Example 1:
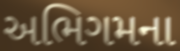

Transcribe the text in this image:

અભિગમના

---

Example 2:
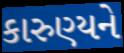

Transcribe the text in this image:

કારુણ્યને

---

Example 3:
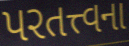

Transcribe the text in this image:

પરતત્ત્વના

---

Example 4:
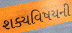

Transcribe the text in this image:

શક્યવિષયની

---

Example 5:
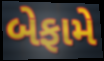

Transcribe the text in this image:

બેફામે